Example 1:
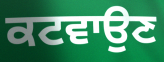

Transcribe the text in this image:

ਕਟਵਾਉਣ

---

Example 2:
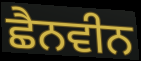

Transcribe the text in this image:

ਛੈਨਵੀਨ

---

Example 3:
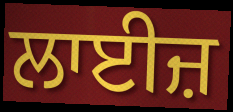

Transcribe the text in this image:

ਲਾਈਜ਼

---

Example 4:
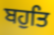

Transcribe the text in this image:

ਬਹੁਤਿ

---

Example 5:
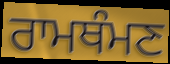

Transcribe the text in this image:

ਰਾਮਥੰਮਣ